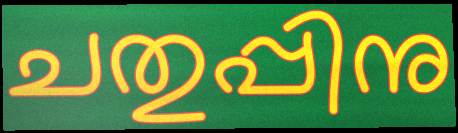
ചതുപ്പിനു